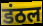
डंठल